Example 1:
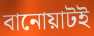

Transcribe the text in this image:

বানোয়াটই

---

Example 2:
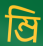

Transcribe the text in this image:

ম্রি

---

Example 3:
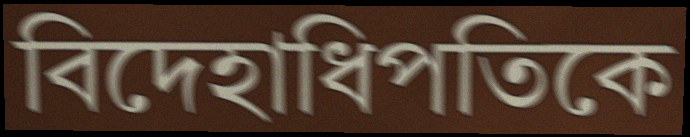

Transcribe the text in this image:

বিদেহাধিপতিকে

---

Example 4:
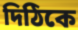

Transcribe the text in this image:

দিঠিকে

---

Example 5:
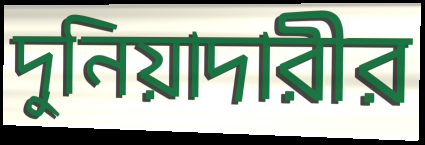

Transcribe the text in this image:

দুনিয়াদারীর